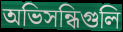
অভিসন্ধিগুলি